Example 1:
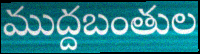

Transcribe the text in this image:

ముద్దబంతుల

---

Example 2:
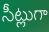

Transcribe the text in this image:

సీట్లుగా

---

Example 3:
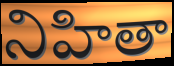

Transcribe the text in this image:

నిహితా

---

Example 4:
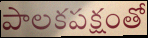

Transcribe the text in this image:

పాలకపక్షంతో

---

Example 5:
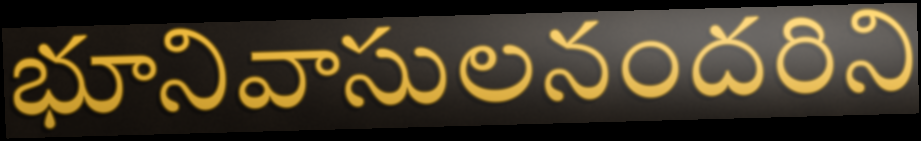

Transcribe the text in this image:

భూనివాసులనందరిని